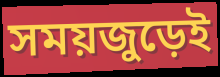
সময়জুড়েই